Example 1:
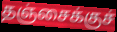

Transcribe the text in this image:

தஞ்சைக்குச்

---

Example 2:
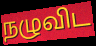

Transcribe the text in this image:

நழுவிட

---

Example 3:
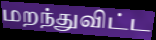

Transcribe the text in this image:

மறந்துவிட்ட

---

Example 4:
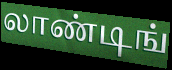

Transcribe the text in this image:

லாண்டிங்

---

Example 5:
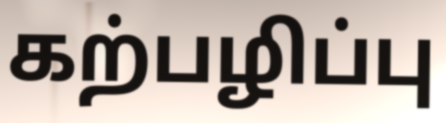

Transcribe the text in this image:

கற்பழிப்பு